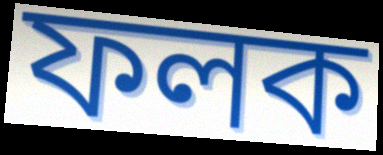
ফলক